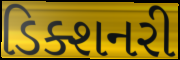
ડિક્શનરી